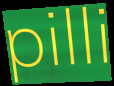
pilli